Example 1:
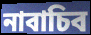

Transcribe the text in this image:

নাবাচিব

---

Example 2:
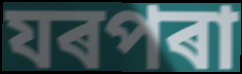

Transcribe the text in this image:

যৰপৰা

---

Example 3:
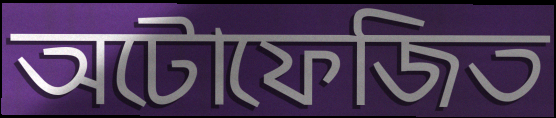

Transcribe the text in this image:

অটোফেজিত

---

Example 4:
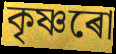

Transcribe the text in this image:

কৃষ্ণৰো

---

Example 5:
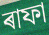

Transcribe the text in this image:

ৰাফা